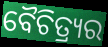
ବୈଚିତ୍ର୍ୟର